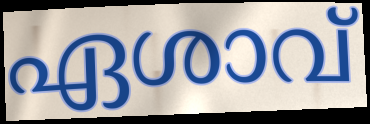
ഏശാവ്